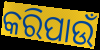
କରିପାଉଁ